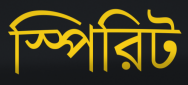
স্পিরিট